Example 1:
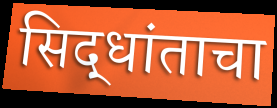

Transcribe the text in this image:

सिद्धांताचा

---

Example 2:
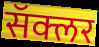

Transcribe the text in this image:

सॅक्लर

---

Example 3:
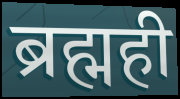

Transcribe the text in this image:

ब्रह्मही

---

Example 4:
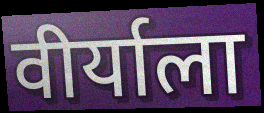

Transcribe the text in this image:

वीर्याला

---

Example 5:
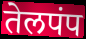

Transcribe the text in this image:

तेलपंप